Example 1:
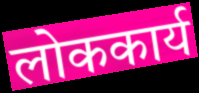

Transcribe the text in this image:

लोककार्य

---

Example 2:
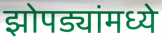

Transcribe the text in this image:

झोपड्यांमध्ये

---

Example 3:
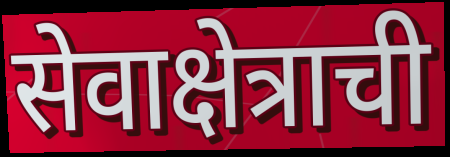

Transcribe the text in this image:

सेवाक्षेत्राची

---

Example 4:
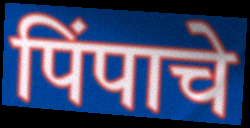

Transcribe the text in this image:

पिंपाचे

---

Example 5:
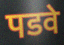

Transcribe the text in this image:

पडवे